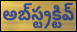
అబ్‌స్ట్రక్టివ్